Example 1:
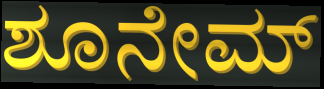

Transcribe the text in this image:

ಶೂನೇಮ್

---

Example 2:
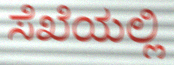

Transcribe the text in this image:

ಸೆಖೆಯಲ್ಲಿ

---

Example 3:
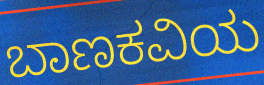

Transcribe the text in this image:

ಬಾಣಕವಿಯ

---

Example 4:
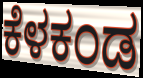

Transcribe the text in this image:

ಕೆಳಕಂಡ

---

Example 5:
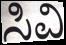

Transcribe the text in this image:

ಸಿವಿ